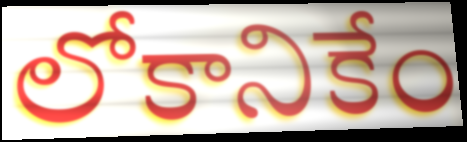
లోకానికేం